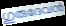
ഗുരുദേവൻ